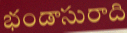
భండాసురాది